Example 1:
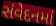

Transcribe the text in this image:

સંવેદનમાં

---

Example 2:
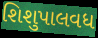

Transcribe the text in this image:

શિશુપાલવધ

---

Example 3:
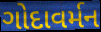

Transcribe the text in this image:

ગોદાવર્મન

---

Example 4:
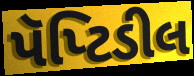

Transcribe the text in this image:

પૅપ્ટિડીલ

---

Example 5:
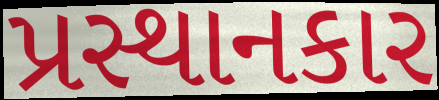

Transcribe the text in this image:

પ્રસ્થાનકાર